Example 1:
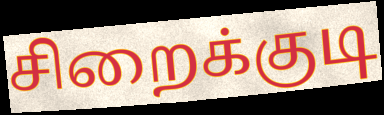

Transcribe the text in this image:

சிறைக்குடி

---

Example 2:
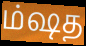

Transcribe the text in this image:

ம்ஷத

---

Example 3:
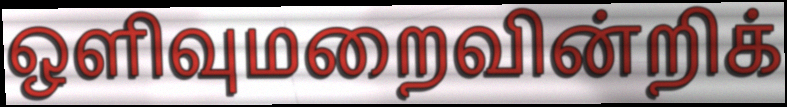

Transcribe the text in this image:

ஒளிவுமறைவின்றிக்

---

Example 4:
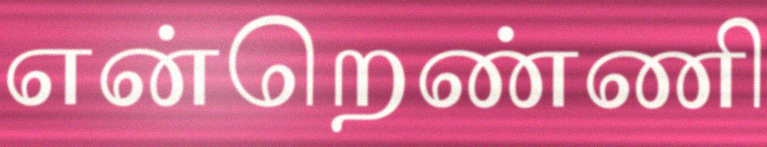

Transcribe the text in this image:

என்றெண்ணி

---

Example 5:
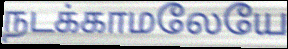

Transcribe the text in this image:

நடக்காமலேயே